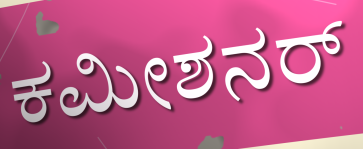
ಕಮೀಶನರ್